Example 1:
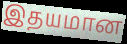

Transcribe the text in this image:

இதயமான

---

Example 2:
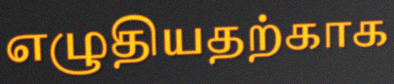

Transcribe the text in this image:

எழுதியதற்காக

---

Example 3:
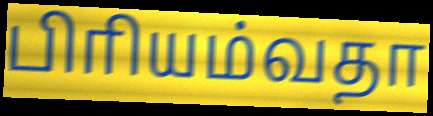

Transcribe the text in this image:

பிரியம்வதா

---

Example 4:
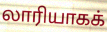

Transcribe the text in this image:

லாரியாகக்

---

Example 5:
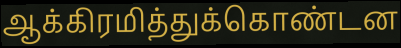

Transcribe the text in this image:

ஆக்கிரமித்துக்கொண்டன